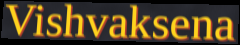
Vishvaksena